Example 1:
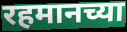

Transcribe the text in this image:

रहमानच्या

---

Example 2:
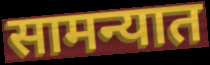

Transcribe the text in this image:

सामन्यात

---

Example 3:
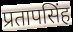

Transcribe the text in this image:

प्रतापसिंह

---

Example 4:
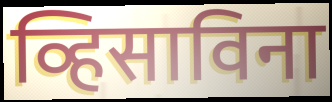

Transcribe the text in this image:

व्हिसाविना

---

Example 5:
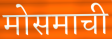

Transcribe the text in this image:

मोसमाची